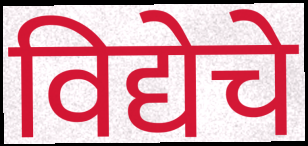
विद्येचे